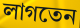
লাগতেন